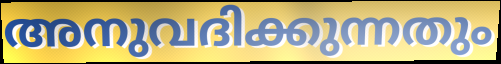
അനുവദിക്കുന്നതും